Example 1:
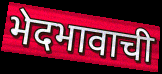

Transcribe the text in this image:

भेदभावाची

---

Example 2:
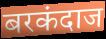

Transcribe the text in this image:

बरकंदाज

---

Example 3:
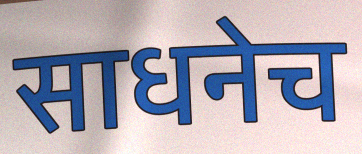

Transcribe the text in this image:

साधनेच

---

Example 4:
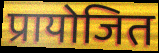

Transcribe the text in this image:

प्रायोजित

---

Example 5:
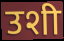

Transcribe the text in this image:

उशी